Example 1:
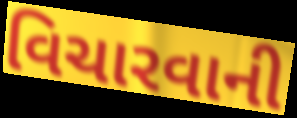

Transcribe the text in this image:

વિચારવાની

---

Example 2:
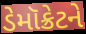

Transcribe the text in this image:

ડેમૉક્રેટને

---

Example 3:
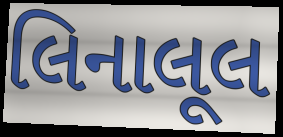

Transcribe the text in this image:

લિનાલૂલ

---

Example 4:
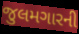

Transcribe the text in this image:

જુલમગારની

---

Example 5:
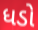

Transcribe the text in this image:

ધડો